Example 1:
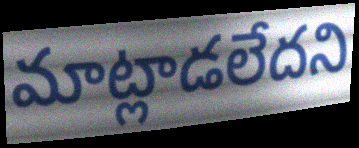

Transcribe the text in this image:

మాట్లాడలేదని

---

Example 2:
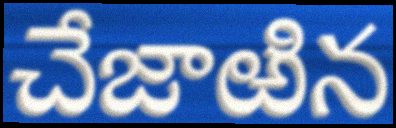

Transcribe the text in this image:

చేజాఱిన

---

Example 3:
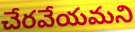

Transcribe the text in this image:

చేరవేయమని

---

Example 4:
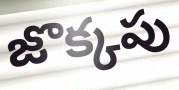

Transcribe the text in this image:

జొక్కపు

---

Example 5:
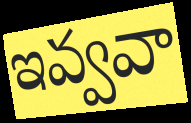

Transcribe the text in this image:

ఇవ్వవా